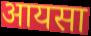
आयसा